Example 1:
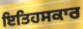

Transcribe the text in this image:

ਇਤਿਹਸਕਾਰ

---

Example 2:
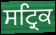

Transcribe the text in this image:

ਸਟ੍ਰਿਕ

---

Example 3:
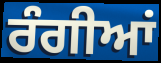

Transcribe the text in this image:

ਰੰਗੀਆਂ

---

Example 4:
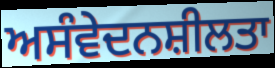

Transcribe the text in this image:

ਅਸੰਵੇਦਨਸ਼ੀਲਤਾ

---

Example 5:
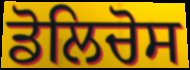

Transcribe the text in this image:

ਡੋਲਿਚੋਸ